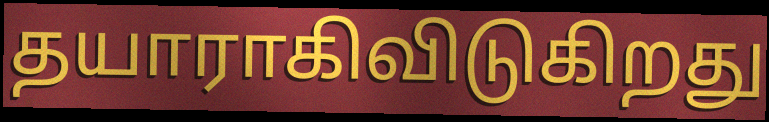
தயாராகிவிடுகிறது